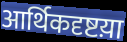
आर्थिकदृष्टय़ा